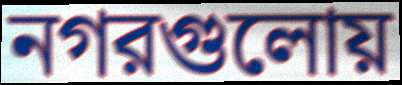
নগরগুলোয়